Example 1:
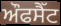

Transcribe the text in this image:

ਔਫਸੈੱਟ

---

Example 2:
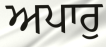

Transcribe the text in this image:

ਅਪਾਰੁ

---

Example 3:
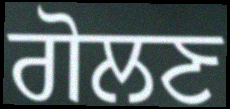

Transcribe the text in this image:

ਗੋਲਣ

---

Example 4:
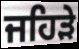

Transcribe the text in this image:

ਜਹਿੜੇ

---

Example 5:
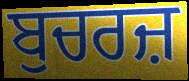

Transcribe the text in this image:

ਬੁਚਰਜ਼